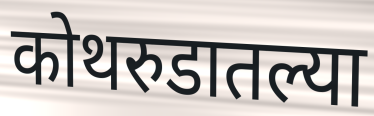
कोथरुडातल्या